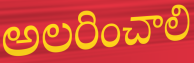
అలరించాలి